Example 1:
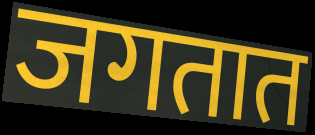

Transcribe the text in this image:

जगतात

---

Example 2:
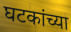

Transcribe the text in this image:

घटकांच्या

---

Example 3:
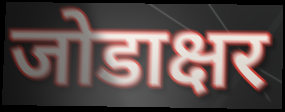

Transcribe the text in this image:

जोडाक्षर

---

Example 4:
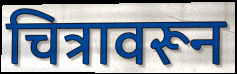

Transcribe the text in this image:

चित्रावरून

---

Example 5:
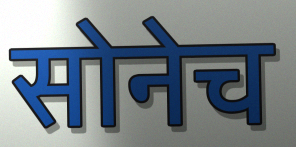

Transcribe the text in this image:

सोनेच